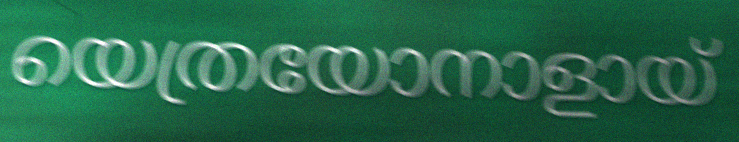
യെത്രയോനാളായ്